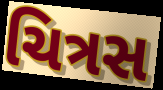
ચિત્રસ